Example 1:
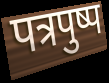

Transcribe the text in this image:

पत्रपुष्प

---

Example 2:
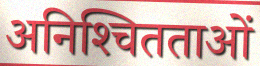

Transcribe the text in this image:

अनिश्‍चितताओं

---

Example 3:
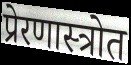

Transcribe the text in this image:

प्रेरणास्त्रोत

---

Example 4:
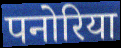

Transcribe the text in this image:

पनोरिया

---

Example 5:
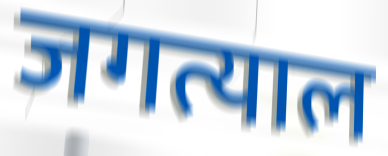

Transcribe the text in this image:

जगत्याल